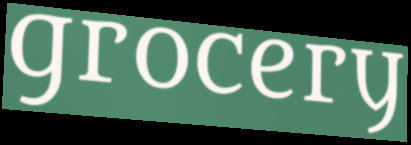
grocery